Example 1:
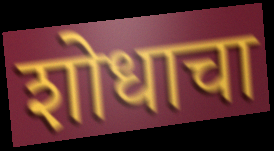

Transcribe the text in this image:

शोधाचा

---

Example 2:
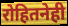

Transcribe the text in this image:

रोहितनेही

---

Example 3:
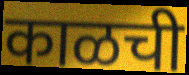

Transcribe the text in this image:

काळची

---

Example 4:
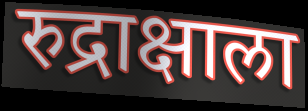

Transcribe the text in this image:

रुद्राक्षाला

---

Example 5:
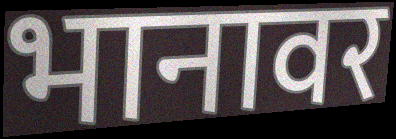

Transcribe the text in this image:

भानावर